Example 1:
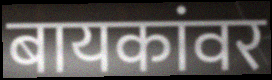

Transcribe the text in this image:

बायकांवर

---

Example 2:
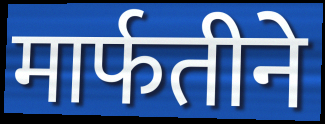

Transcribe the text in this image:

मार्फतीने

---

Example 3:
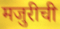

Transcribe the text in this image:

मजुरीची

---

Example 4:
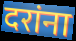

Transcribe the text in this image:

दरांना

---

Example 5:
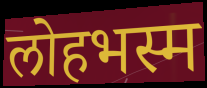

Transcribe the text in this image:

लोहभस्म